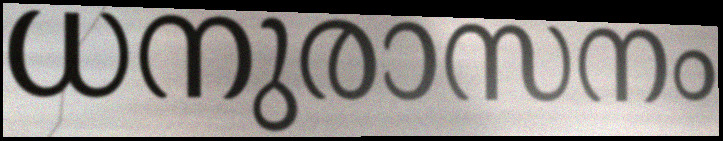
ധനുരാസനം